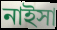
নাইসা